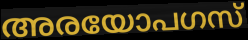
അരയോപഗസ്